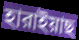
হারাইয়াছ